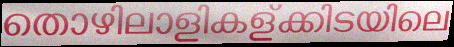
തൊഴിലാളികള്ക്കിടയിലെ